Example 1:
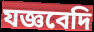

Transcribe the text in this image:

যজ্ঞবেদি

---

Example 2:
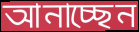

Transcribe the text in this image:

আনাচ্ছেন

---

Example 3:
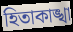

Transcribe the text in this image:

হিতাকাঙ্খা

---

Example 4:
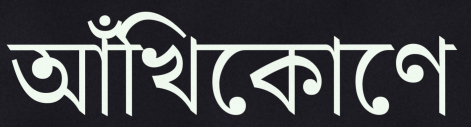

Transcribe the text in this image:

আঁখিকোণে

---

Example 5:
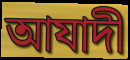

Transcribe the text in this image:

আযাদী